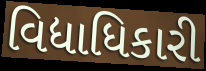
વિદ્યાધિકારી